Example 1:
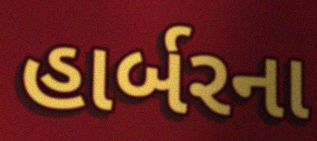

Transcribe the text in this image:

હાર્બરના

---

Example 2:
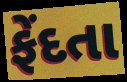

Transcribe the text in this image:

ફેંદતા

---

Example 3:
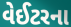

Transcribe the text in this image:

વેઈટરના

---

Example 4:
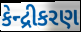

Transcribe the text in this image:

કેન્દ્રીકરણ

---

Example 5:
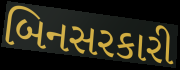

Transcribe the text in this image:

બિનસરકારી